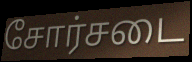
சோர்சடை